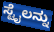
ಸ್ಟೈಲನ್ನು